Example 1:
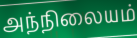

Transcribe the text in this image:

அந்நிலையம்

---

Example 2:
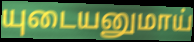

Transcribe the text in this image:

யுடையனுமாய்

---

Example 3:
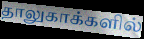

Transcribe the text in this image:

தாலுகாக்களில்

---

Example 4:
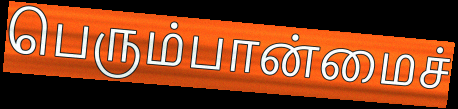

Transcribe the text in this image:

பெரும்பான்மைச்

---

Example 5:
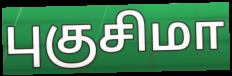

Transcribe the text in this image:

புகுசிமா